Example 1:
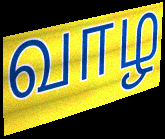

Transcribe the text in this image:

வாழ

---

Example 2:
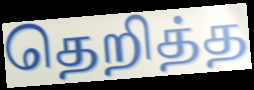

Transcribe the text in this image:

தெறித்த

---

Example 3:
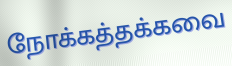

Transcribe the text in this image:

நோக்கத்தக்கவை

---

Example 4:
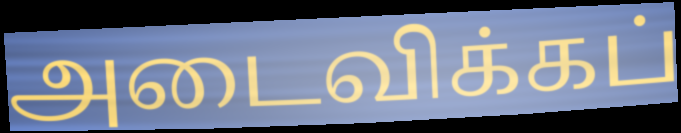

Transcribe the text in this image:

அடைவிக்கப்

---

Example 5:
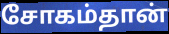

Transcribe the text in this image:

சோகம்தான்